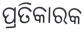
ପ୍ରତିକାରକ